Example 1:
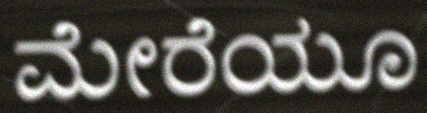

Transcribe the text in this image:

ಮೇರೆಯೂ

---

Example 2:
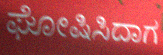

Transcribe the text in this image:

ಘೋಷಿಸಿದಾಗ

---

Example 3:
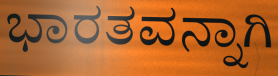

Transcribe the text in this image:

ಭಾರತವನ್ನಾಗಿ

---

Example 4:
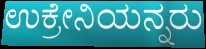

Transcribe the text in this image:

ಉಕ್ರೇನಿಯನ್ನರು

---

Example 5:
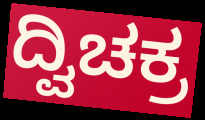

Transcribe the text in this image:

ದ್ವಿಚಕ್ರ